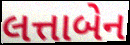
લત્તાબેન